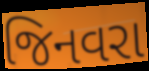
જિનવરા